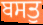
ਬਸਤੁ